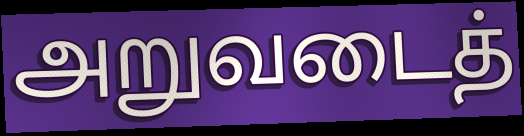
அறுவடைத்